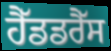
ਹੈੱਡਡਰੈੱਸ